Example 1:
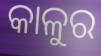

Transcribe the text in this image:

କାଳୁର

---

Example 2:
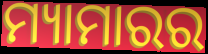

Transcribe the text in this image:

ମ୍ୟାମାରର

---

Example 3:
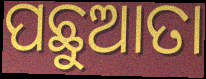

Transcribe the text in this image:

ପଛୁଆତା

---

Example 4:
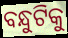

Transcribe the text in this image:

ବନ୍ଧୁଟିକୁ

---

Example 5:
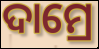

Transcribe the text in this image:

ଦାମ୍ରେ